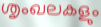
ശൃംഖലകളും